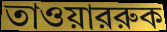
তাওয়াররুক